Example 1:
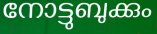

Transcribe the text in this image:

നോട്ടുബുക്കും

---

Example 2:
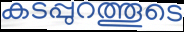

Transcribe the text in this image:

കടപ്പുറത്തൂടെ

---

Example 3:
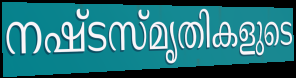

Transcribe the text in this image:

നഷ്ടസ്മൃതികളുടെ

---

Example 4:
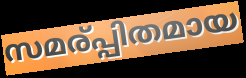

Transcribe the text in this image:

സമര്പ്പിതമായ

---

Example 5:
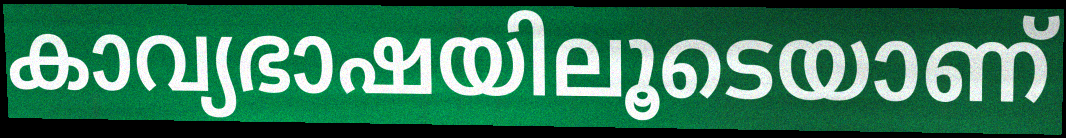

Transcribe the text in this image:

കാവ്യഭാഷയിലൂടെയാണ്